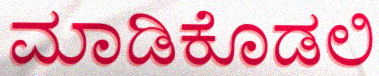
ಮಾಡಿಕೊಡಲಿ